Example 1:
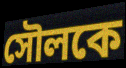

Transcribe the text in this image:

সৌলকে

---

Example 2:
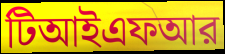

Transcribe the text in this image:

টিআইএফআর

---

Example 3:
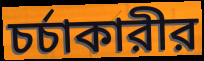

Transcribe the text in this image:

চর্চাকারীর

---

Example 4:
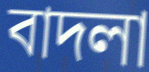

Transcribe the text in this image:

বাদলা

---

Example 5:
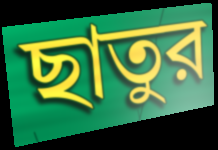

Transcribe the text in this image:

ছাতুর